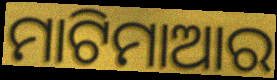
ମାଟିମାଆର